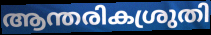
ആന്തരികശ്രുതി